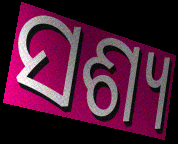
ସଶ୍ୟ